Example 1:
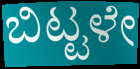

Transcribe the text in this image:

ಬಿಟ್ಟಳೇ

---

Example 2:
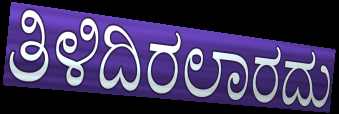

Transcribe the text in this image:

ತಿಳಿದಿರಲಾರದು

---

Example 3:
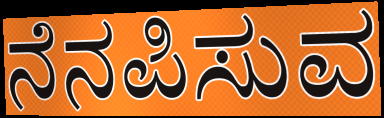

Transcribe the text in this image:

ನೆನಪಿಸುವ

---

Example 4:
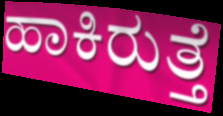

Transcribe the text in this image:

ಹಾಕಿರುತ್ತೆ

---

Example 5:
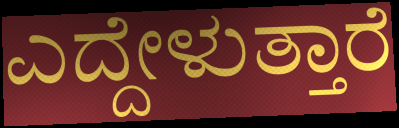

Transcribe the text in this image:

ಎದ್ದೇಳುತ್ತಾರೆ